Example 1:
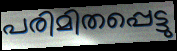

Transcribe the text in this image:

പരിമിതപ്പെട്ടു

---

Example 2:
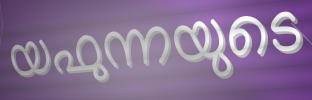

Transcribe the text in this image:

യഫുന്നയുടെ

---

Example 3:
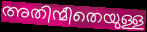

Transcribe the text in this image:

അതിന്മീതെയുള്ള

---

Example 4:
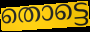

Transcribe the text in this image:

തൊട്ടെ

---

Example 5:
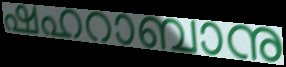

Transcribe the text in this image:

ഷഹറാബാനു